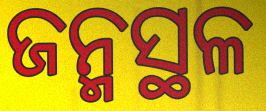
ଜନ୍ମସ୍ଥଳ